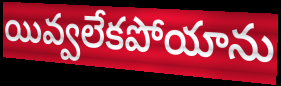
యివ్వలేకపోయాను